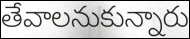
తేవాలనుకున్నారు